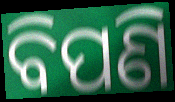
ବିପଣି